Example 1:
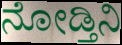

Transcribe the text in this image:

ನೋಡ್ತಿನಿ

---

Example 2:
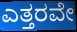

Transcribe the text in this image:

ಎತ್ತರವೇ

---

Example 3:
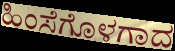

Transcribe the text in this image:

ಹಿಂಸೆಗೊಳಗಾದ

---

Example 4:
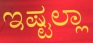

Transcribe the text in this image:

ಇಷ್ಟಲ್ಲಾ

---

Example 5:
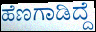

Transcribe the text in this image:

ಹೆಣಗಾಡಿದ್ದೆ